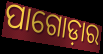
ପାଗୋଡ଼ାର